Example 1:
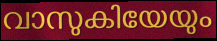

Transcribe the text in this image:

വാസുകിയേയും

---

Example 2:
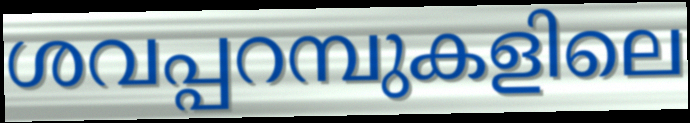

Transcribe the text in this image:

ശവപ്പറമ്പുകളിലെ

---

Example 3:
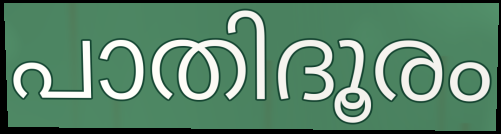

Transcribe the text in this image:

പാതിദൂരം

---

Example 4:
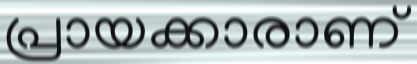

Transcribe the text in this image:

പ്രായക്കാരാണ്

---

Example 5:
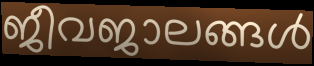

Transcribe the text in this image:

ജീവജാലങ്ങൾ